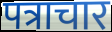
पत्राचार